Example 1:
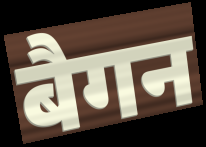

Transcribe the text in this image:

बैगन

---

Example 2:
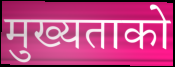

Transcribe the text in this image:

मुख्यताको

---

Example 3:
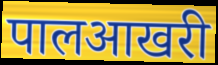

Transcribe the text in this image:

पालआखरी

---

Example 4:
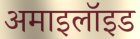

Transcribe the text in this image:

अमाइलॉइड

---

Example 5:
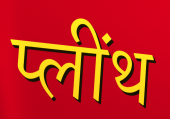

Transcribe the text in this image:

प्लींथ